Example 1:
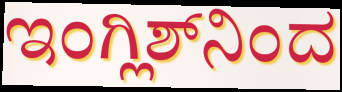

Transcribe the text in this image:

ಇಂಗ್ಲಿಶ್‌ನಿಂದ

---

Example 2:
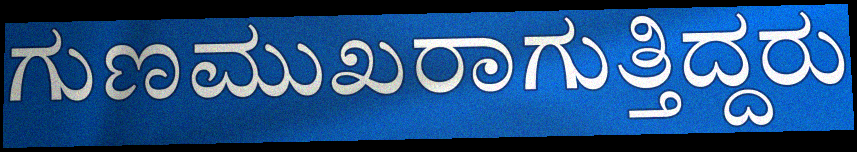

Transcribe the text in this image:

ಗುಣಮುಖರಾಗುತ್ತಿದ್ದರು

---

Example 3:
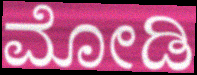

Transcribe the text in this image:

ಮೋಡಿ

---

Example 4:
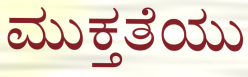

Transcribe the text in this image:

ಮುಕ್ತತೆಯು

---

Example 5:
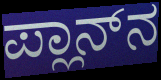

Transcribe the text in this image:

ಪ್ಲಾನ್‌ನ